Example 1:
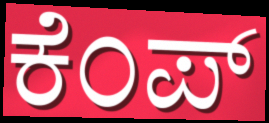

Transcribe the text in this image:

ಕೆಂಪ್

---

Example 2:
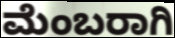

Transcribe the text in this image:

ಮೆಂಬರಾಗಿ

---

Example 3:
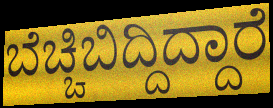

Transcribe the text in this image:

ಬೆಚ್ಚಿಬಿದ್ದಿದ್ದಾರೆ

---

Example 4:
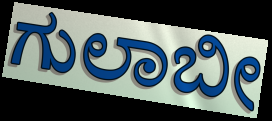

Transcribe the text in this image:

ಗುಲಾಬೀ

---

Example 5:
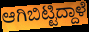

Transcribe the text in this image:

ಆಗಿಬಿಟ್ಟಿದ್ದಾಳೆ